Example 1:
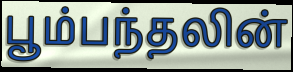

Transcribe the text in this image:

பூம்பந்தலின்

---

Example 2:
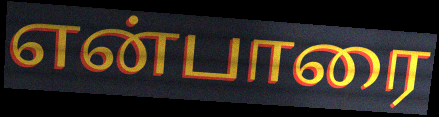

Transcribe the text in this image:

என்பாரை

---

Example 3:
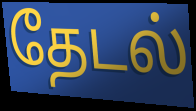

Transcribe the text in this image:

தேடல்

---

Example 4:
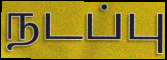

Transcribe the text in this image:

நடப்பு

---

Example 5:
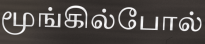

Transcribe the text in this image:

மூங்கில்போல்